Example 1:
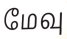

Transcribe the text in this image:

மேவு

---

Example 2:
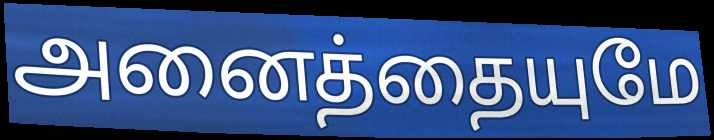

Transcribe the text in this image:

அனைத்தையுமே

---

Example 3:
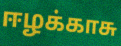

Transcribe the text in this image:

ஈழக்காசு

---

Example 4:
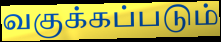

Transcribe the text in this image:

வகுக்கப்படும்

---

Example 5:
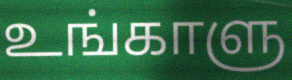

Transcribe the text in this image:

உங்காளு